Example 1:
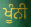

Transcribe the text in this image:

ਖੂੰਨੀ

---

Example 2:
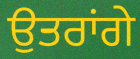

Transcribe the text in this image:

ਉਤਰਾਂਗੇ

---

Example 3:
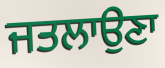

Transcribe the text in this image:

ਜਤਲਾਉਣਾ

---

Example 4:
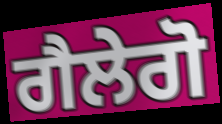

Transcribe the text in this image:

ਗੈਲੇਗੋ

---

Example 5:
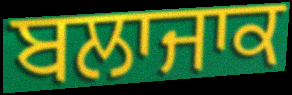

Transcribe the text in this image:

ਬਲਾਜਾਕ